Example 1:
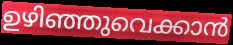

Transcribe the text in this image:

ഉഴിഞ്ഞുവെക്കാൻ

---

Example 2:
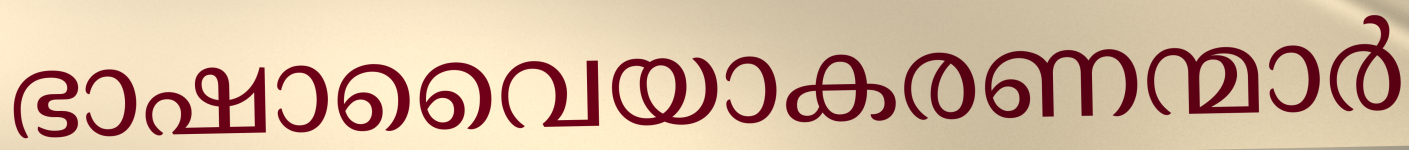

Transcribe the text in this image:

ഭാഷാവൈയാകരണന്മാർ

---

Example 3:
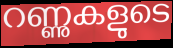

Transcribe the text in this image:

റണ്ണുകളുടെ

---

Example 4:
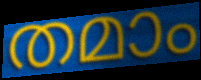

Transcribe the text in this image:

തമാം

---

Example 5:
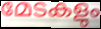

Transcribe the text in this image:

മേടകളും